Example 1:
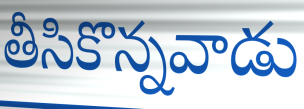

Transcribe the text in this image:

తీసికొన్నవాడు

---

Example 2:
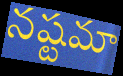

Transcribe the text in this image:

నష్టమా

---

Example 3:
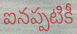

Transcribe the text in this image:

ఐనప్పటికీ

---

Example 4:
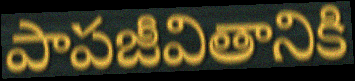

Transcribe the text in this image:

పాపజీవితానికి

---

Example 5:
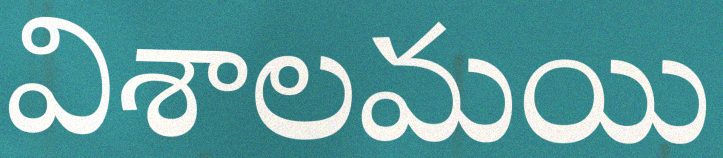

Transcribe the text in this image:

విశాలమయి